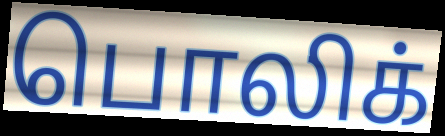
பொலிக்